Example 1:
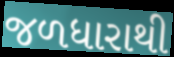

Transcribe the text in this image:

જળધારાથી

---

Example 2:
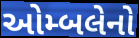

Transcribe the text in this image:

ઓમ્બલેનો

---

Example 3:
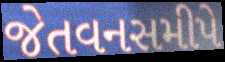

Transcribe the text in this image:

જેતવનસમીપે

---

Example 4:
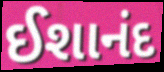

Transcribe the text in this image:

ઈશાનંદ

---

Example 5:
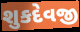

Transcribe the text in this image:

શુકદેવજી